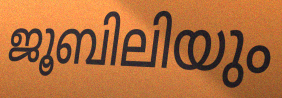
ജൂബിലിയും